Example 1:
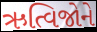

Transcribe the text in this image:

ઋત્વિજોને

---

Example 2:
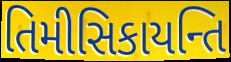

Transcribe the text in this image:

તિમીસિકાયન્તિ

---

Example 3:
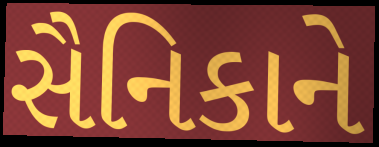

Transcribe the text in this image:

સૈનિકાને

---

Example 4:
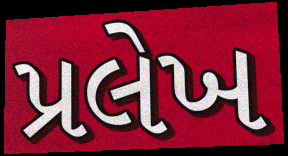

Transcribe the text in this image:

પ્રલેખ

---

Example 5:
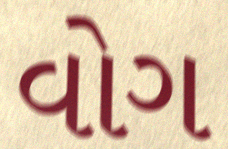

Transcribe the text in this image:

વોગ